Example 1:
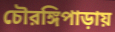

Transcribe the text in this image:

চৌরঙ্গিপাড়ায়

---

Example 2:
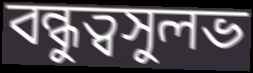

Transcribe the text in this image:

বন্ধুত্বসুলভ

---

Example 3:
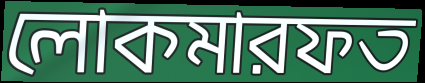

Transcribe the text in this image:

লোকমারফত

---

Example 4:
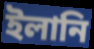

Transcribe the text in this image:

ইলানি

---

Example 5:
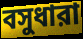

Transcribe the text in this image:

বসুধারা